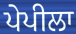
ਪੇਪੀਲਾ